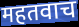
महतवाच